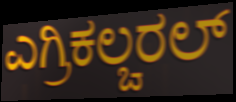
ಎಗ್ರಿಕಲ್ಚರಲ್